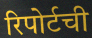
रिपोर्टची